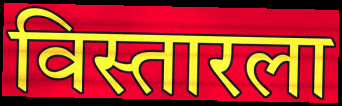
विस्तारला